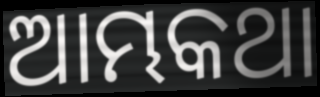
ଆମ୍ଭକଥା